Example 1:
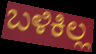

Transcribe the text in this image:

ಬಳಿಕಿಲ್ಲ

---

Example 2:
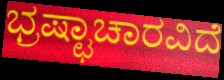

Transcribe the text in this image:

ಭ್ರಷ್ಟಾಚಾರವಿದೆ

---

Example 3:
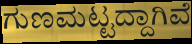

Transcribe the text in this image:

ಗುಣಮಟ್ಟದ್ದಾಗಿವೆ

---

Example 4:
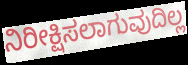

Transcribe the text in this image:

ನಿರೀಕ್ಷಿಸಲಾಗುವುದಿಲ್ಲ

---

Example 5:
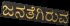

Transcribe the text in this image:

ಜನತೆಗಿರುವ